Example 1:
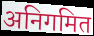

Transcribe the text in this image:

अनिगमित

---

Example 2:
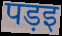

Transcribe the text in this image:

पड़इ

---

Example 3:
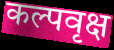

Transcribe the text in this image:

कल्‍पवृक्ष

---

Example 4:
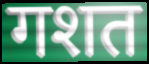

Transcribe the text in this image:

गशत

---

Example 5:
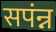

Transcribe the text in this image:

सपंन्न